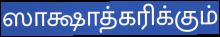
ஸாக்ஷாத்கரிக்கும்